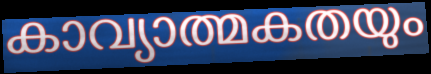
കാവ്യാത്മകതയും